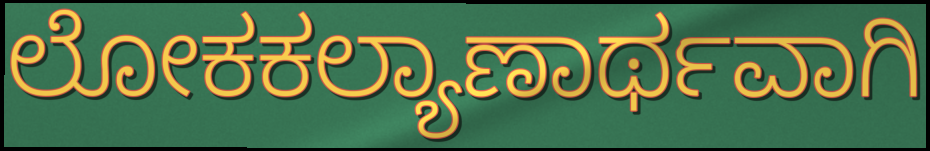
ಲೋಕಕಲ್ಯಾಣಾರ್ಥವಾಗಿ